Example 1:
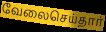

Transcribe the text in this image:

வேலைசெய்தார்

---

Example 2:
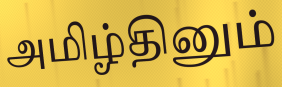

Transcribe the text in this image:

அமிழ்தினும்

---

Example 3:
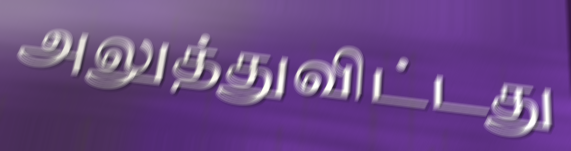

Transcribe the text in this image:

அலுத்துவிட்டது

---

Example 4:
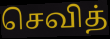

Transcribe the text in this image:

செவித்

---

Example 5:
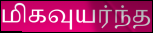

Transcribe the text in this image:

மிகவுயர்ந்த